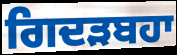
ਗਿਦੜਬਹਾ